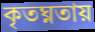
কৃতঘ্নতায়